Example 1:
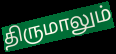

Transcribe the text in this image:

திருமாலும்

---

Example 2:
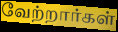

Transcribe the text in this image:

வேற்றார்கள்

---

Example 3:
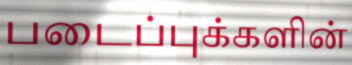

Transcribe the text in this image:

படைப்புக்களின்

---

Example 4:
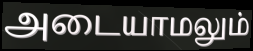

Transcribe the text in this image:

அடையாமலும்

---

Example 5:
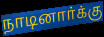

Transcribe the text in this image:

நாடினார்க்கு